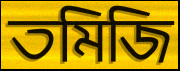
তমিজি